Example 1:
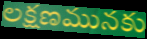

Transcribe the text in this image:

లక్షణమునకు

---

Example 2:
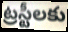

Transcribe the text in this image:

ట్రస్టీలకు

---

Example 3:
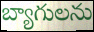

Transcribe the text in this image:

బ్యాగులను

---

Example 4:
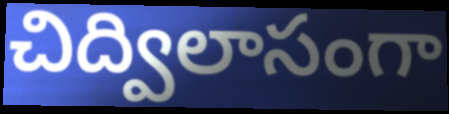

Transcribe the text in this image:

చిద్విలాసంగా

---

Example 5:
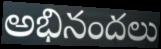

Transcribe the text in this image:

అభినందలు